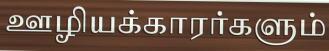
ஊழியக்காரர்களும்